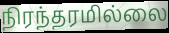
நிரந்தரமில்லை